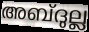
അബ്ദുല്ല